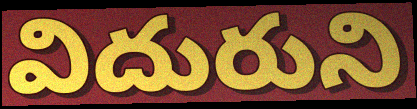
విదురుని